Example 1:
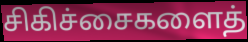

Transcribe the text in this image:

சிகிச்சைகளைத்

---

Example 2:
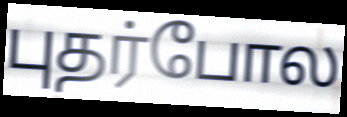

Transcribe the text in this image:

புதர்போல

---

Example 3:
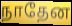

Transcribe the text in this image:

நாதேன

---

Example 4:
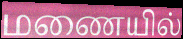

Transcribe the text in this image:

மணையில்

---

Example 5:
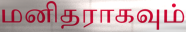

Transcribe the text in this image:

மனிதராகவும்